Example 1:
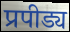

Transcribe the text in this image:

प्रपीड्य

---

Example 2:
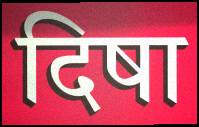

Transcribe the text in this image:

दिषा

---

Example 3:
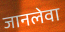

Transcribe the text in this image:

जानलेवा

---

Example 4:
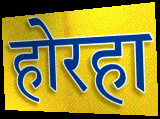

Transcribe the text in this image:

होरहा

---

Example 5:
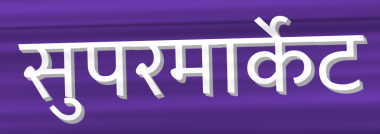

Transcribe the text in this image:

सुपरमार्केट